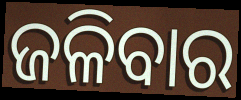
ଜଳିବାର